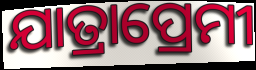
ଯାତ୍ରାପ୍ରେମୀ